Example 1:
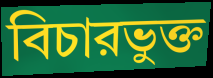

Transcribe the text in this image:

বিচারভুক্ত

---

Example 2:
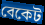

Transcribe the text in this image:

বেকেট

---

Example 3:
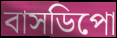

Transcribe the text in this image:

বাসডিপো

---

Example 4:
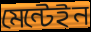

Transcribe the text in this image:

মেন্টেইন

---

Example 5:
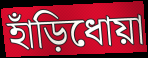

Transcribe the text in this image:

হাঁড়িধোয়া